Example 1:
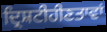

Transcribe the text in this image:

ਦ੍ਰਿਸ਼ਟੀਹੀਣਤਾਵਾਂ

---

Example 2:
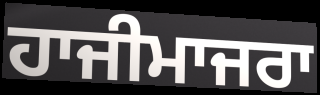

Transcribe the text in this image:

ਹਾਜੀਮਾਜਰਾ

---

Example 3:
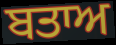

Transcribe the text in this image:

ਬਤਾਅ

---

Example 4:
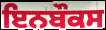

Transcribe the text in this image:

ਇਨਬੌਕਸ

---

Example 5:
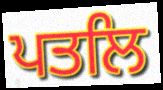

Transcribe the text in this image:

ਪਤਲਿ